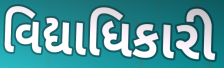
વિદ્યાધિકારી